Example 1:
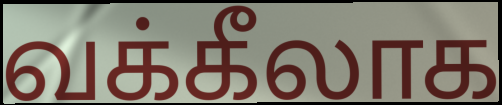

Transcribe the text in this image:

வக்கீலாக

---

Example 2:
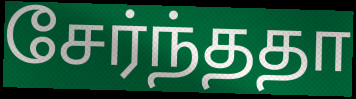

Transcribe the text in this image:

சேர்ந்ததா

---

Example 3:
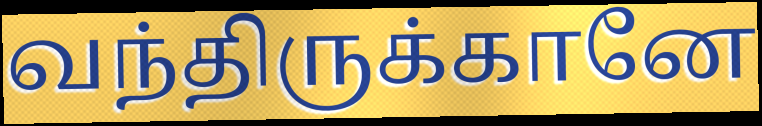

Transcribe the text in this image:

வந்திருக்கானே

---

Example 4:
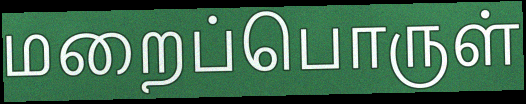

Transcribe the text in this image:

மறைப்பொருள்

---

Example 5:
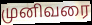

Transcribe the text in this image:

முனிவரை